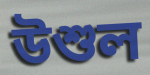
উশুল